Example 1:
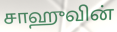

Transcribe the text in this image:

சாஹுவின்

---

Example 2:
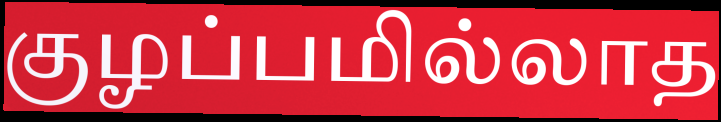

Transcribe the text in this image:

குழப்பமில்லாத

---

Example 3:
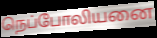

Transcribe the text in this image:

நெப்போலியனை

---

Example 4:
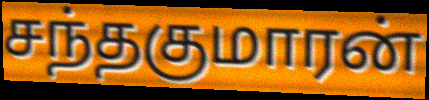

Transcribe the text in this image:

சந்தகுமாரன்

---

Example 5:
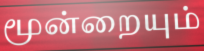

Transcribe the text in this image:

மூன்றையும்